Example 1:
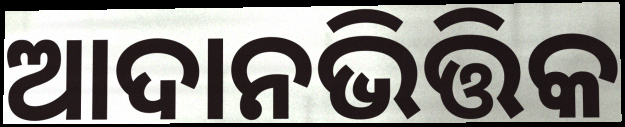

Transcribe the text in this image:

ଆଦାନଭିତ୍ତିକ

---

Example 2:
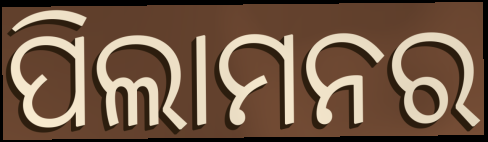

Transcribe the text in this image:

ପିଲାମନର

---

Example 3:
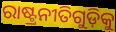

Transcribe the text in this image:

ରାଷ୍ଟ୍ରନୀତିଗୁଡ଼ିକୁ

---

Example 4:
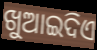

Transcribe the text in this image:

ଖୁଆଇଦିଏ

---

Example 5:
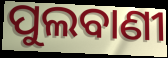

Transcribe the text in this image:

ପୁଲବାଣୀ